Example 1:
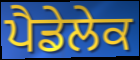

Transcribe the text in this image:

ਪੈਡੇਲੇਕ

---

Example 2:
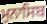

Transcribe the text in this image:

ਮੁਨਾਸਿਬ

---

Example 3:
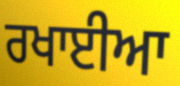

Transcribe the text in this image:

ਰਖਾਈਆ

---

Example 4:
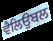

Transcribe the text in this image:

ਵੈਲਿਉਬਲ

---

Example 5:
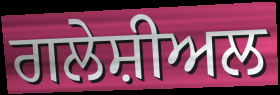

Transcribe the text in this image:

ਗਲੇਸ਼ੀਅਲ